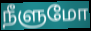
நீளுமோ